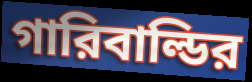
গারিবাল্ডির